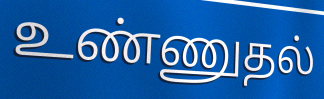
உண்ணுதல்